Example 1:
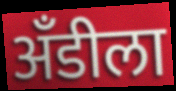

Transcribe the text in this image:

अँडीला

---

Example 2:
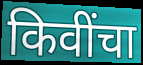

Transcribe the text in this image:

किवींचा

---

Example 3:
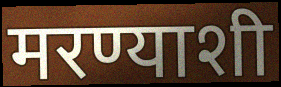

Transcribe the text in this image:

मरण्याशी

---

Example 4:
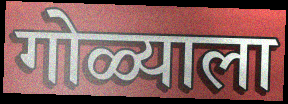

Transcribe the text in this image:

गोळ्याला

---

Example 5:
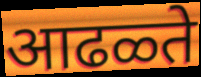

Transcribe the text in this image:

आढळ्ते